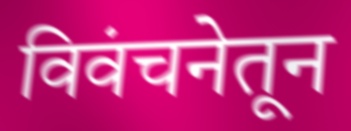
विवंचनेतून